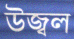
উজ্বল